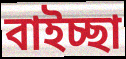
বাইচ্ছা